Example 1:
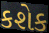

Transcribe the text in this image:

કશેક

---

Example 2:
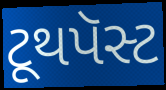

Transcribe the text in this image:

ટૂથપૅસ્ટ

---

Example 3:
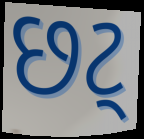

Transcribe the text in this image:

છટ્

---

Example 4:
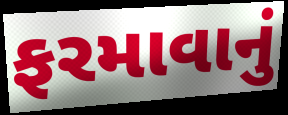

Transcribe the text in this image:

ફરમાવાનું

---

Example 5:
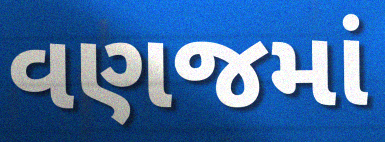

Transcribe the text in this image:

વણજમાં